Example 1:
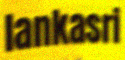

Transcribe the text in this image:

lankasri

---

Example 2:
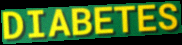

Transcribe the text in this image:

DIABETES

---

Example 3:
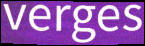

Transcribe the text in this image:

verges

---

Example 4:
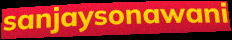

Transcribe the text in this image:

sanjaysonawani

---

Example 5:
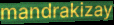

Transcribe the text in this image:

mandrakizay